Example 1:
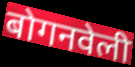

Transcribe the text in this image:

बोगनवेली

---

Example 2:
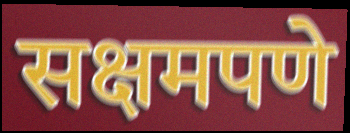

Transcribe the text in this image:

सक्षमपणे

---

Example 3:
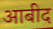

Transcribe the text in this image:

आबीद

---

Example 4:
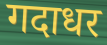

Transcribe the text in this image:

गदाधर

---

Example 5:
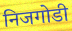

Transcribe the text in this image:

निजगोडी